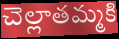
చెల్లాతమ్మకి